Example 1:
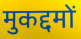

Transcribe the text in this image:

मुकद्दमों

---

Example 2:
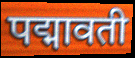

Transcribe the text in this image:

पद्मावती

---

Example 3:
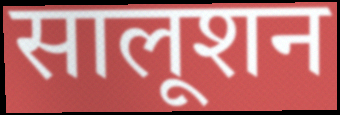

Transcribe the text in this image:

सालूशन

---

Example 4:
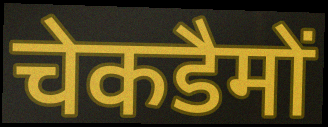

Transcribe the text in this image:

चेकडैमों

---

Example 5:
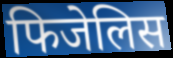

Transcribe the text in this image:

फिजेलिस